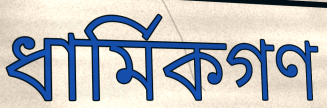
ধার্মিকগণ